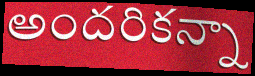
అందరికన్నా